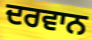
ਦਰਵਾਨ